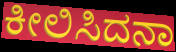
ಕೀಲಿಸಿದನಾ